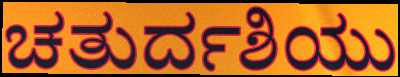
ಚತುರ್ದಶಿಯು